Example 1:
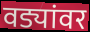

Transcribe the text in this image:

वड्यांवर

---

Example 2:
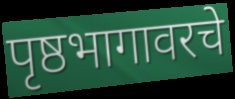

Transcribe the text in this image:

पृष्ठभागावरचे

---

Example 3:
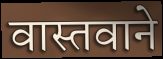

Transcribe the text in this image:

वास्तवाने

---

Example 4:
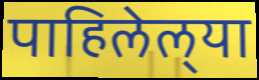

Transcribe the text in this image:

पाहिलेल्या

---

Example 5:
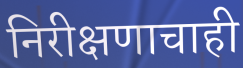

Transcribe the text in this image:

निरीक्षणाचाही